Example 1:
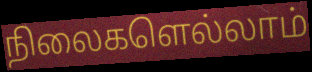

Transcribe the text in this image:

நிலைகளெல்லாம்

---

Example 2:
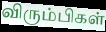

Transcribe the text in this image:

விரும்பிகள்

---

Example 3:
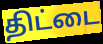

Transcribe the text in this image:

திட்டை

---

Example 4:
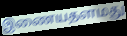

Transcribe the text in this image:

இணையதளமது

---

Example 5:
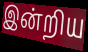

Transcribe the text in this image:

இன்றிய